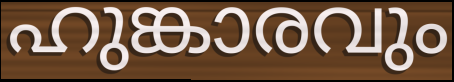
ഹുങ്കാരവും